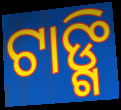
ଟାଙ୍ଗି